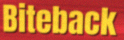
Biteback